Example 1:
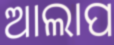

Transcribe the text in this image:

ଆଲାପ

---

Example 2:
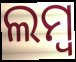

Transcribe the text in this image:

ଲମ୍ବ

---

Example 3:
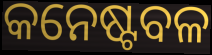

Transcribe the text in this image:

କନେଷ୍ଟବଳ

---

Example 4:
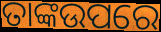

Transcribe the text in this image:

ତାଙ୍କଉପରେ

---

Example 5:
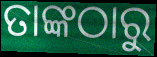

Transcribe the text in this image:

ତାଙ୍କଠାରୁ